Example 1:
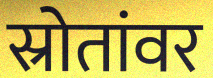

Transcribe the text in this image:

स्रोतांवर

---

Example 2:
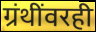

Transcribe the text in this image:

ग्रंथींवरही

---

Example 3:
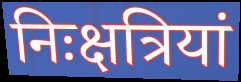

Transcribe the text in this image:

निःक्षत्रियां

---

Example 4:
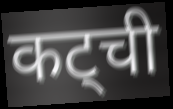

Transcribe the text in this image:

कट्ची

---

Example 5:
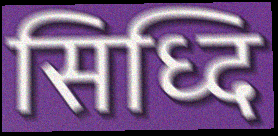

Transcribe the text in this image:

सिध्दि